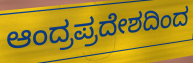
ಆಂದ್ರಪ್ರದೇಶದಿಂದ